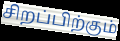
சிறப்பிற்கும்